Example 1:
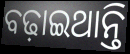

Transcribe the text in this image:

ବଢ଼ାଇଥାନ୍ତି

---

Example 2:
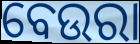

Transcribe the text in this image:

ବେଉରା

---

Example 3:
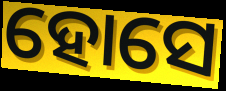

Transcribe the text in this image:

ହୋସେ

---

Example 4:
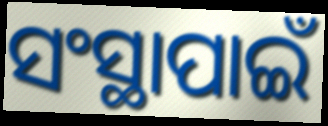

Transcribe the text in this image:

ସଂସ୍ଥାପାଇଁ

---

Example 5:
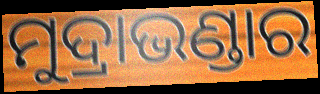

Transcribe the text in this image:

ମୁଦ୍ରାଭଣ୍ଡାର